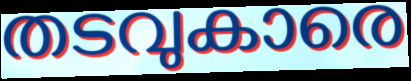
തടവുകാരെ